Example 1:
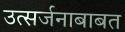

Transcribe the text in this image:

उत्सर्जनाबाबत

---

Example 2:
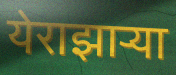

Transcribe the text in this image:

येराझाऱ्या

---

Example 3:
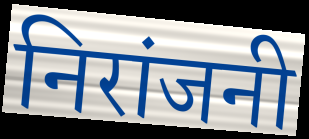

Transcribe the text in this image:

निरांजनी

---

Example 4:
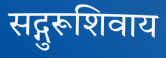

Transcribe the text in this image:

सद्गुरूशिवाय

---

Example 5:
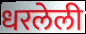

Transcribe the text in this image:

धरलेली